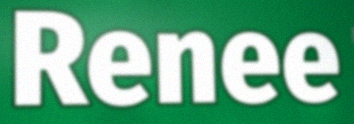
Renee